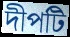
দীপটি